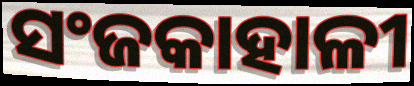
ସଂଜକାହାଳୀ